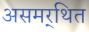
असमर्थित